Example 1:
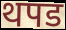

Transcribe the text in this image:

थपड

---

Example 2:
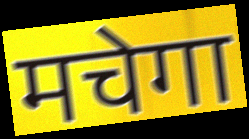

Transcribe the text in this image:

मचेगा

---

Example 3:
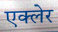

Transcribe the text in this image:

एक्लेर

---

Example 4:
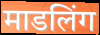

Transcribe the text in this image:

माडलिंग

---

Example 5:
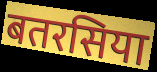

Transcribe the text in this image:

बतरसिया